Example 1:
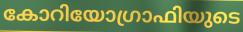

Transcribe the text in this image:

കോറിയോഗ്രാഫിയുടെ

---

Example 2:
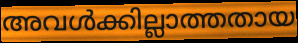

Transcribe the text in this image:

അവൾക്കില്ലാത്തതായ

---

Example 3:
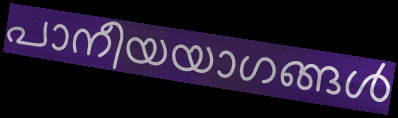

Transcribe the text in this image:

പാനീയയാഗങ്ങൾ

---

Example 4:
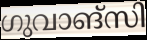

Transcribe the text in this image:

ഗുവാങ്സി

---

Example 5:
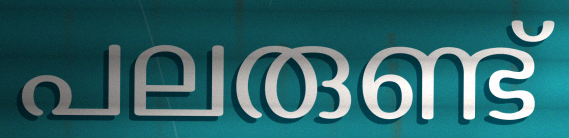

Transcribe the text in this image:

പലരുണ്ട്